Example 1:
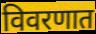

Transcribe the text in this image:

विवरणात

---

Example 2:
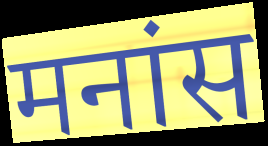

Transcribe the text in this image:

मनांस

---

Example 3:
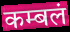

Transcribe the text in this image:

कम्बलं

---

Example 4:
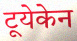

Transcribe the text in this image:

टूयेकेन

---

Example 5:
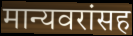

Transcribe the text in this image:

मान्यवरांसह